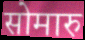
सोमारु